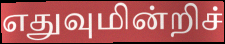
எதுவுமின்றிச்